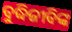
ବୁଦ୍ଧିଜୀବିଙ୍କ